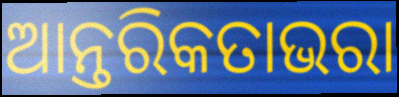
ଆନ୍ତରିକତାଭରା